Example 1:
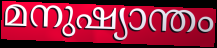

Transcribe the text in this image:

മനുഷ്യാന്തം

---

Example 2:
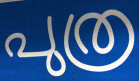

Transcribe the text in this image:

പുത്ര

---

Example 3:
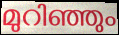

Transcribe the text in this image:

മുറിഞ്ഞും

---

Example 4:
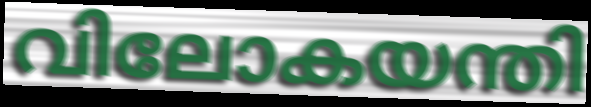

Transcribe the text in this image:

വിലോകയന്തി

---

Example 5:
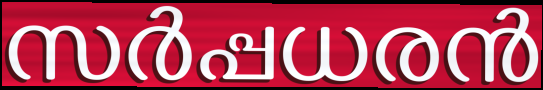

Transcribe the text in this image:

സർപ്പധരൻ